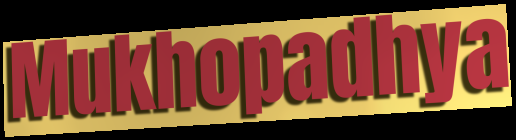
Mukhopadhya